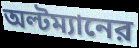
অল্টম্যানের